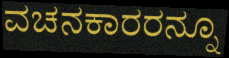
ವಚನಕಾರರನ್ನೂ